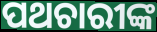
ପଥଚାରୀଙ୍କ